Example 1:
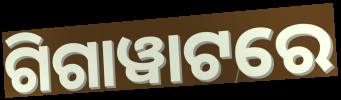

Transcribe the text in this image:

ଗିଗାୱାଟରେ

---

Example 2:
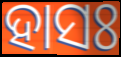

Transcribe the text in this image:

ହାସଃ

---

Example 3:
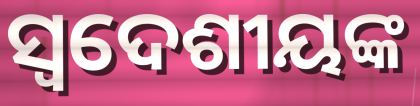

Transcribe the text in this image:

ସ୍ଵଦେଶୀୟଙ୍କ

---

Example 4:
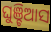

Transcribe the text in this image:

ଘୁଞ୍ଚିଆସ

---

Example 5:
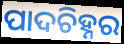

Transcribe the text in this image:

ପାଦଚିହ୍ନର